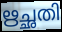
ഋച്ഛതി